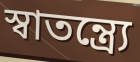
স্বাতন্ত্র্যে